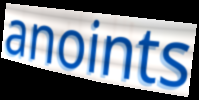
anoints